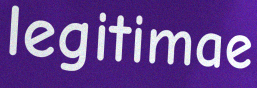
legitimae